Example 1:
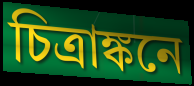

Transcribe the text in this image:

চিত্রাঙ্কনে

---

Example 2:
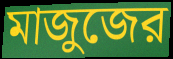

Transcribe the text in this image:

মাজুজের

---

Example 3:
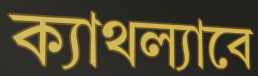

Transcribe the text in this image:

ক্যাথল্যাবে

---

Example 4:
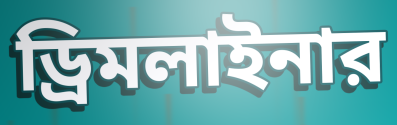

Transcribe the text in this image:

ড্রিমলাইনার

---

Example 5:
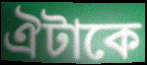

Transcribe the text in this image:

ঐটাকে